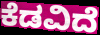
ಕೆಡವಿದೆ